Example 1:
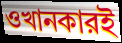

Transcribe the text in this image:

ওখানকারই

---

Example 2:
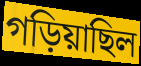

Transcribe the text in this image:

গড়িয়াছিল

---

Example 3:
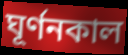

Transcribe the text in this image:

ঘূর্ণনকাল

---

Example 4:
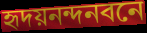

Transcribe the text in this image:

হৃদয়নন্দনবনে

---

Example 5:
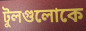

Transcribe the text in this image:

টুলগুলোকে